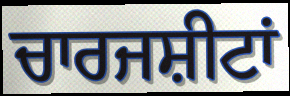
ਚਾਰਜਸ਼ੀਟਾਂ